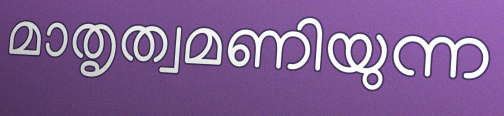
മാതൃത്വമണിയുന്ന